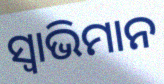
ସ୍ୱାଭିମାନ